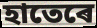
হাতেৰে